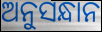
ଅନୁସନ୍ଧାନ